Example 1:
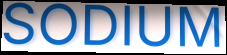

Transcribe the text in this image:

SODIUM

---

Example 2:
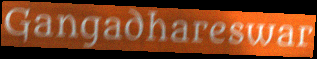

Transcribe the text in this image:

Gangadhareswar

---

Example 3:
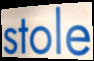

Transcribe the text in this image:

stole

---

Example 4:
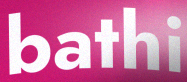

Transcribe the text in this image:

bathi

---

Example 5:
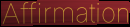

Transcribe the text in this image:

Affirmation